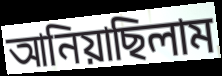
আনিয়াছিলাম